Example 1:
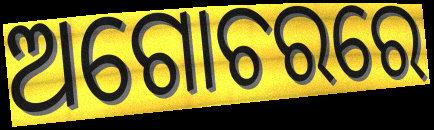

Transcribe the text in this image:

ଅଗୋଚରରେ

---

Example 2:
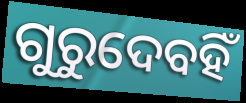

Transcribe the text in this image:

ଗୁରୁଦେବହିଁ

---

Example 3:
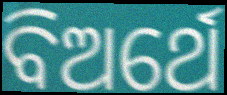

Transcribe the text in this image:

ବିଅର୍ଥେ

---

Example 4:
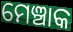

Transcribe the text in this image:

ମେଞ୍ଚାକ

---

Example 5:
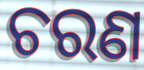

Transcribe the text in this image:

ଚରଣ